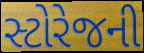
સ્ટોરેજની